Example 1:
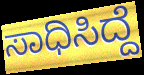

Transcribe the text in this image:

ಸಾಧಿಸಿದ್ದೆ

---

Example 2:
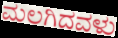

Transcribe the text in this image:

ಮಲಗಿದವಳು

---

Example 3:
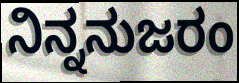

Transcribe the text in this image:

ನಿನ್ನನುಜರಂ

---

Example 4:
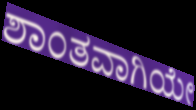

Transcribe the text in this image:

ಶಾಂತವಾಗಿಯೇ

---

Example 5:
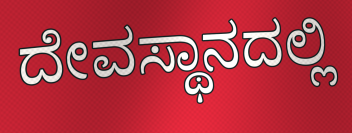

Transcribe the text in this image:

ದೇವಸ್ಥಾನದಲ್ಲಿ